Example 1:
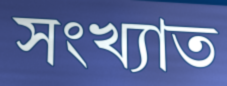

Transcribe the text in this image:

সংখ্যাত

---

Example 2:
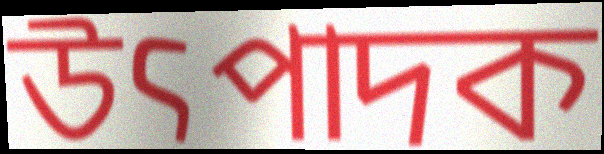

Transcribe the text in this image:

উৎপাদক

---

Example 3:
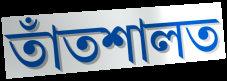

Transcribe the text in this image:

তাঁতশালত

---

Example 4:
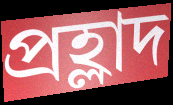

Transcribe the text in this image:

প্ৰহ্লাদ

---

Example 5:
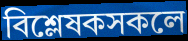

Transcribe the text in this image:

বিশ্লেষকসকলে